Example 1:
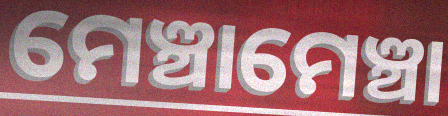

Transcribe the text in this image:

ମେଞ୍ଚାମେଞ୍ଚା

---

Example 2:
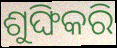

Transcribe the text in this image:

ଶୁଙ୍ଘିକରି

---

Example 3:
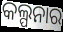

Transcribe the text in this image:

କଲ୍ପନାର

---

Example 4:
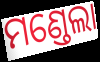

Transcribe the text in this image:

ମଣ୍ଡେଲା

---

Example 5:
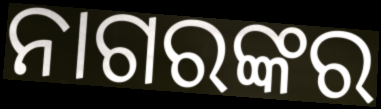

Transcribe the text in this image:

ନାଗରଙ୍କର